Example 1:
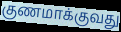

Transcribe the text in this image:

குணமாக்குவது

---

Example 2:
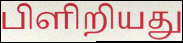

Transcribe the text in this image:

பிளிறியது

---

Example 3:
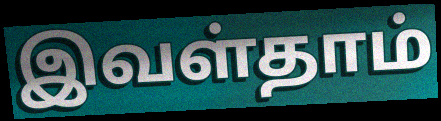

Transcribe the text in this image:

இவள்தாம்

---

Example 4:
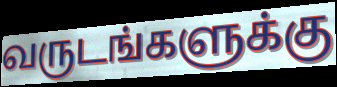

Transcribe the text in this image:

வருடங்களுக்கு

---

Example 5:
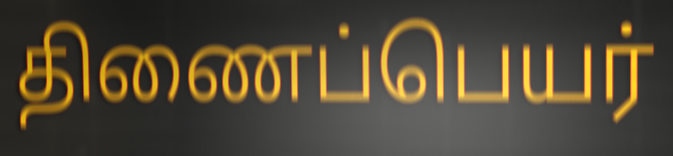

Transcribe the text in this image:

திணைப்பெயர்